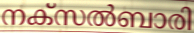
നക്സൽബാരി